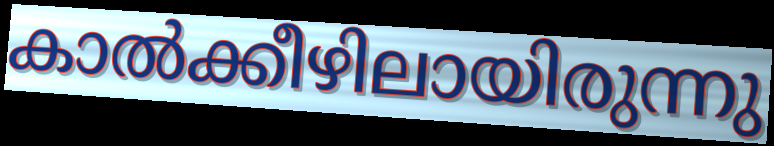
കാൽക്കീഴിലായിരുന്നു